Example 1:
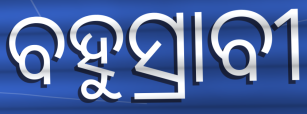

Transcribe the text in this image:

ବହୁସ୍ରାବୀ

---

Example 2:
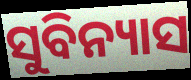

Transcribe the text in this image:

ସୁବିନ୍ୟାସ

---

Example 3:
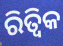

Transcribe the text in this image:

ରିତ୍ୱିକ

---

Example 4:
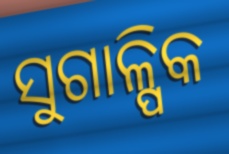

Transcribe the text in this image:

ସୁଗାଳ୍ପିକ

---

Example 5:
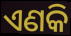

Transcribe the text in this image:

ଏଣକି